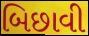
બિછાવી